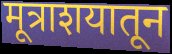
मूत्राशयातून